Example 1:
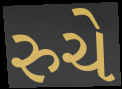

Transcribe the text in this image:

રુચે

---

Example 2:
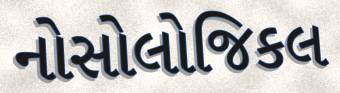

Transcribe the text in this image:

નોસોલોજિકલ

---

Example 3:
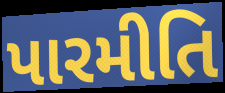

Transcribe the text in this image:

પારમીતિ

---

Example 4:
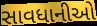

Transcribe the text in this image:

સાવધાનીઓ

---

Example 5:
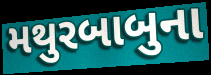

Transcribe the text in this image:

મથુરબાબુના